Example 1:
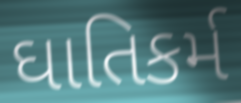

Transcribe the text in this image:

ઘાતિકર્મ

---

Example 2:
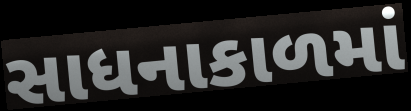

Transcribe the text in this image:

સાધનાકાળમાં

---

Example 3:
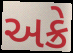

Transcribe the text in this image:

અક્રે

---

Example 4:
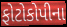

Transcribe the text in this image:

ફોટોકોપીના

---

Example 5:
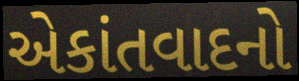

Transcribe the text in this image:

એકાંતવાદનો